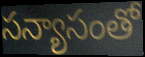
సన్యాసంతో